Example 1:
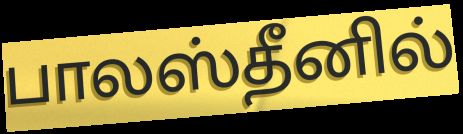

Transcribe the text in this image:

பாலஸ்தீனில்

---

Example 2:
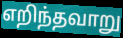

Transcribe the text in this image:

எறிந்தவாறு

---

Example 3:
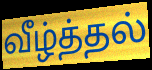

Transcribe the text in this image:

வீழ்த்தல்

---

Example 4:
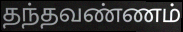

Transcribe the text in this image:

தந்தவண்ணம்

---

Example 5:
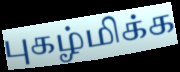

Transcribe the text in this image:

புகழ்மிக்க